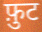
फ़ुट